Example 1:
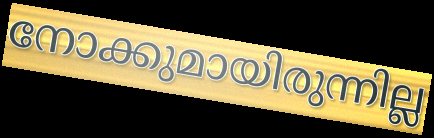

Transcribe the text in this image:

നോക്കുമായിരുന്നില്ല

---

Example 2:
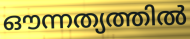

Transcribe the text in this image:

ഔന്നത്യത്തിൽ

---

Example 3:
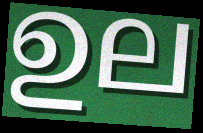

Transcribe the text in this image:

ഉല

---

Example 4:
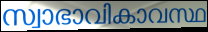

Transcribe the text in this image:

സ്വാഭാവികാവസ്ഥ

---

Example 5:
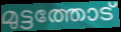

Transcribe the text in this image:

മുട്ടത്തോട്